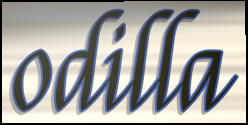
odilla